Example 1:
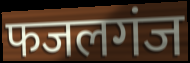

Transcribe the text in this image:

फजलगंज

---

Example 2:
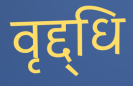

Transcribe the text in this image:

वृद्द्धि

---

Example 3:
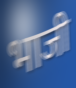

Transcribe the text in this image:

भाजी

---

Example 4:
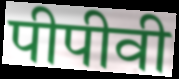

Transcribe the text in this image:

पीपीवी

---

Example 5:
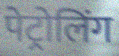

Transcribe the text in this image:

पेट्रोलिंग